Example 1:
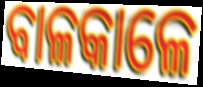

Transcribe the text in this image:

ବାଳକାଳେ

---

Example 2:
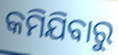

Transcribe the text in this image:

କମିଯିବାରୁ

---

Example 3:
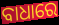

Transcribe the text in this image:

ବାଧାରେ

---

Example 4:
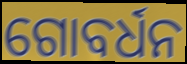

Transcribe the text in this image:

ଗୋବର୍ଧନ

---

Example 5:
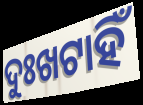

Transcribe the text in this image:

ଦୁଃଖଟାହିଁ